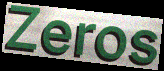
Zeros